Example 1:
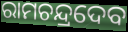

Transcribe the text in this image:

ରାମଚନ୍ଦ୍ରଦେବ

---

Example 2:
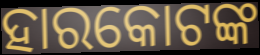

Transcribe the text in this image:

ହାରକୋଟଙ୍କ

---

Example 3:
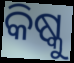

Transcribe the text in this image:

କିଷ୍କୁ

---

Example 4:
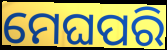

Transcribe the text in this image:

ମେଘପରି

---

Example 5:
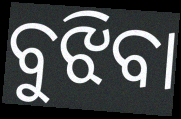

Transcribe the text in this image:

ବୁଝିବା